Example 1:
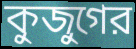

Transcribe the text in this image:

কুজুগের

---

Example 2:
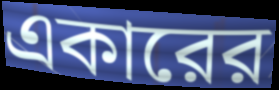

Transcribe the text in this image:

একারের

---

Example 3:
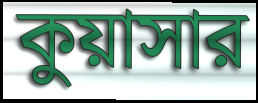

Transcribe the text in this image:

কুয়াসার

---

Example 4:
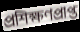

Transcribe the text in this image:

প্রশিক্ষণপ্রাপ্ত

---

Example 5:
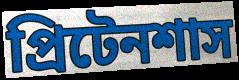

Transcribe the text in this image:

প্রিটেনশাস